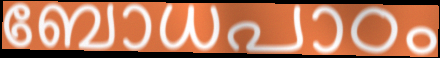
ബോധപാഠം